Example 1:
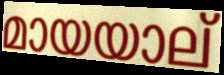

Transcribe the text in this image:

മായയാല്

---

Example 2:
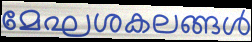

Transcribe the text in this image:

മേഘശകലങ്ങൾ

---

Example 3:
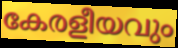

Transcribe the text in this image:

കേരളീയവും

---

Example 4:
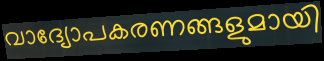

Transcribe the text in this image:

വാദ്യോപകരണങ്ങളുമായി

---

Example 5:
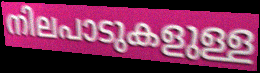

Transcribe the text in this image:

നിലപാടുകളുള്ള